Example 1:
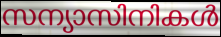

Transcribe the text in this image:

സന്യാസിനികൾ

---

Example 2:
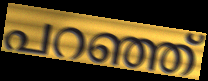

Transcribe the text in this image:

പറഞ്ഞ്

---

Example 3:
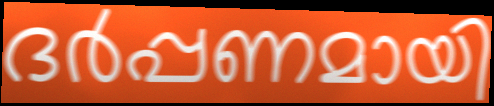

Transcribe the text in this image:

ദർപ്പണമായി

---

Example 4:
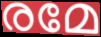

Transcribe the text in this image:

രമേ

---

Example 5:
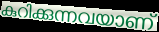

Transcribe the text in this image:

കുറിക്കുന്നവയാണ്